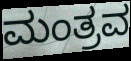
ಮಂತ್ರವ